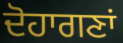
ਦੋਹਾਗਣਾਂ